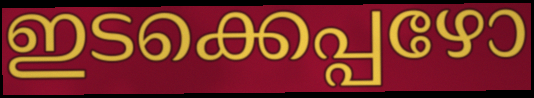
ഇടക്കെപ്പഴോ